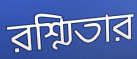
রশ্মিতার